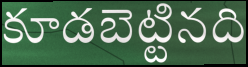
కూడబెట్టినది